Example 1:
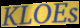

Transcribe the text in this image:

KLOEs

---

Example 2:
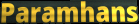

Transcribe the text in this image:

Paramhans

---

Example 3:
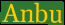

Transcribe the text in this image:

Anbu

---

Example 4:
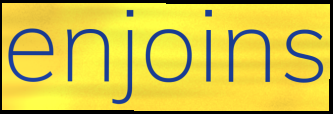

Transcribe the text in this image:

enjoins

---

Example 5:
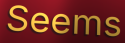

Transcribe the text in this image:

Seems